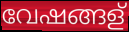
വേഷങ്ങള്